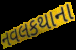
નવલકથાના